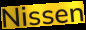
Nissen